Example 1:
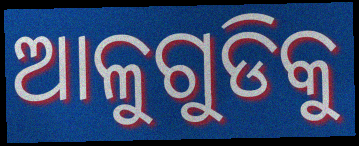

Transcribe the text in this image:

ଆଳୁଗୁଡିକୁ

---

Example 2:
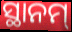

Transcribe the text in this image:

ସ୍ଥାନମ୍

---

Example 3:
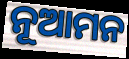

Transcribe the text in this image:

ନୂଆମନ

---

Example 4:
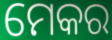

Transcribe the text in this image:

ମେକର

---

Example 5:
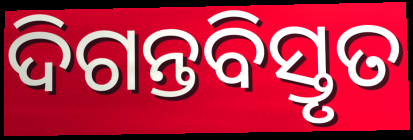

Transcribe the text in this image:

ଦିଗନ୍ତବିସ୍ତୃତ